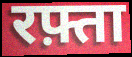
रफ़्ता